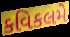
કવિકલમે